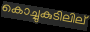
കൊച്ചുകുടിലില്